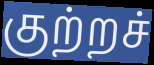
குற்றச்